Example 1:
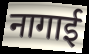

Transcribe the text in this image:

नागाई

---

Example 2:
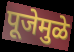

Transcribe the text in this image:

पूजेमुळे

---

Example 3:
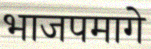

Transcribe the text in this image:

भाजपमागे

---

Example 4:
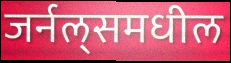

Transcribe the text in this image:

जर्नल्समधील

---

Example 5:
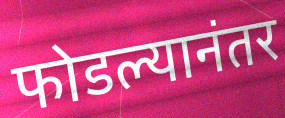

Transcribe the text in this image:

फोडल्यानंतर